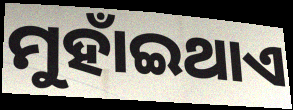
ମୁହାଁଇଥାଏ